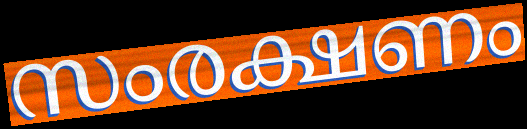
സംരക്ഷണം